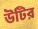
উটির